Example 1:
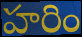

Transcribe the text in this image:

హరిం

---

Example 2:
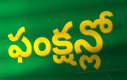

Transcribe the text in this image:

ఫంక్షన్లో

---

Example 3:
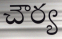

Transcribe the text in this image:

చౌర్య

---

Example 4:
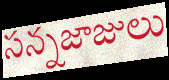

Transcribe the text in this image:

సన్నజాజులు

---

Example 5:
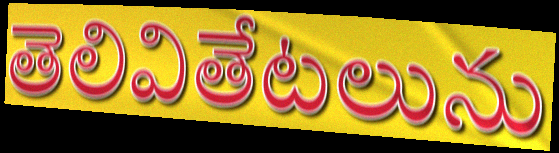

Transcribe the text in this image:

తెలివితేటలును